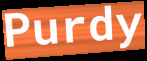
Purdy